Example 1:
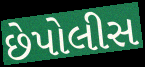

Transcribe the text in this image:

છેપોલીસ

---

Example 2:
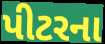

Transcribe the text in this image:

પીટરના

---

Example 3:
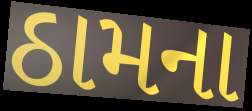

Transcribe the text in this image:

ઠામના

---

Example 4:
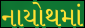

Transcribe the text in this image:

નાયોથમાં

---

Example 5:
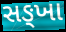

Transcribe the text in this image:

સઙ્ખા